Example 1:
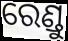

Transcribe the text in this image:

ରେଣ୍ଡୁ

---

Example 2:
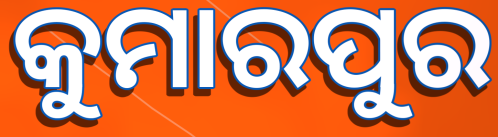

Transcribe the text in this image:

କୁମାରପୁର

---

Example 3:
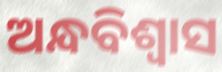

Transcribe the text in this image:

ଅନ୍ଧବିଶ୍ଵାସ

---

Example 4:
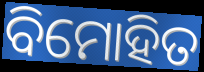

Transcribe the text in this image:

ବିମୋହିତ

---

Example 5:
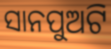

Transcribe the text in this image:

ସାନପୁଅଟି